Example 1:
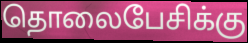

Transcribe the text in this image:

தொலைபேசிக்கு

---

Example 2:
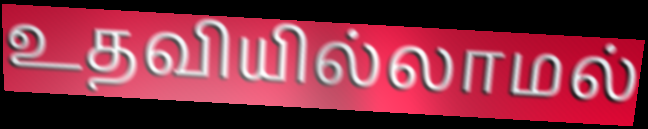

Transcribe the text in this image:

உதவியில்லாமல்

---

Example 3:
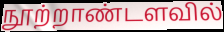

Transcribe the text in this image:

நூற்றாண்டளவில்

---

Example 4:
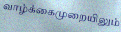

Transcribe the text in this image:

வாழ்க்கைமுறையிலும்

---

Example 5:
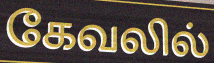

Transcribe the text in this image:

கேவலில்